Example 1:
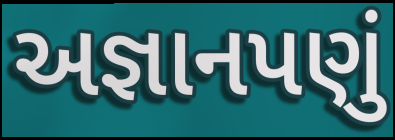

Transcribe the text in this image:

અજ્ઞાનપણું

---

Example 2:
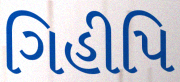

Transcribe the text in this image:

ગિહીપિ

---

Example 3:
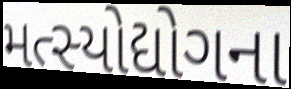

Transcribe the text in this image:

મત્સ્યોદ્યોગના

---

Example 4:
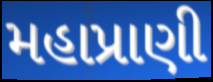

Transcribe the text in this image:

મહાપ્રાણી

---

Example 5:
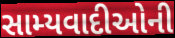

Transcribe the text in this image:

સામ્યવાદીઓની